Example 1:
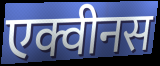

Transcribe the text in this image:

एक्वीनस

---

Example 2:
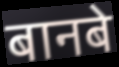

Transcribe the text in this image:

बानबे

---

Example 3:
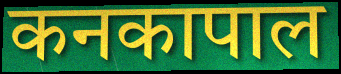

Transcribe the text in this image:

कनकापाल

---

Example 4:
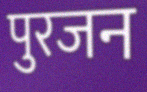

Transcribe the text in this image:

पुरजन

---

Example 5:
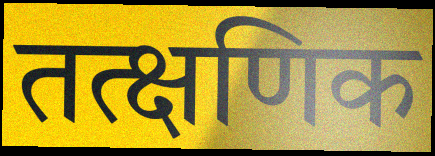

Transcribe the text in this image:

तत्क्षणिक